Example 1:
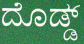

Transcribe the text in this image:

ದೊಡ್ಡ್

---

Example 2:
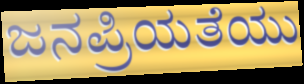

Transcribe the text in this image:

ಜನಪ್ರಿಯತೆಯು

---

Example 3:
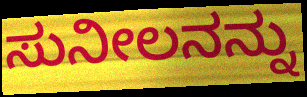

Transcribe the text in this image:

ಸುನೀಲನನ್ನು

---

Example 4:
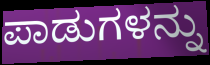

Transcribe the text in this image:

ಪಾಡುಗಳನ್ನು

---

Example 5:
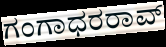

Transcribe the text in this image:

ಗಂಗಾಧರರಾವ್